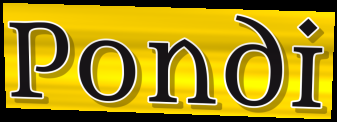
Pondi